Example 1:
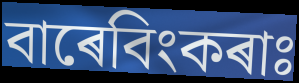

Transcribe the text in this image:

বাৰেবিংকৰাঃ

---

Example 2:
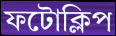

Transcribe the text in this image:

ফটোক্লিপ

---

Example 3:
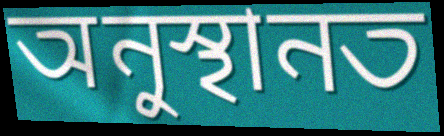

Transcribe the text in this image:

অনুস্থানত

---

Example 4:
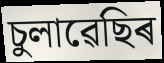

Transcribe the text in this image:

চুলাৱেছিৰ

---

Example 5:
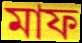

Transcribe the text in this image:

মাফ